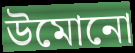
উমোনো